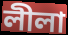
লীলা